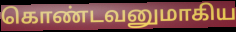
கொண்டவனுமாகிய